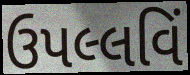
ઉપલ્લવિં